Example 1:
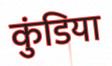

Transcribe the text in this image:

कुंडिया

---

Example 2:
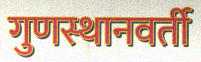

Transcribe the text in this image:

गुणस्थानवर्ती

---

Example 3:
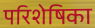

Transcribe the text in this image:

परिशेषिका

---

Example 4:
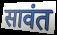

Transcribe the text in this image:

सावंत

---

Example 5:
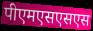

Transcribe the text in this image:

पीएमएसएसएस